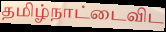
தமிழ்நாட்டைவிட